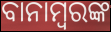
ବାନାମ୍ବରଙ୍କ